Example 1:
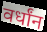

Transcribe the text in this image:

वर्धांन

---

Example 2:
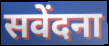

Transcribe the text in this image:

सवेंदना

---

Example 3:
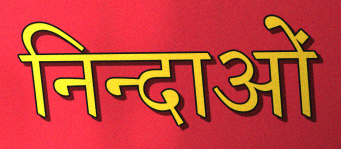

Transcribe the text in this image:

निन्दाओं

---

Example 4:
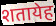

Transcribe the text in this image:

शतायेह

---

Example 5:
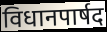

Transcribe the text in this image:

विधानपार्षद